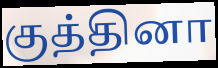
குத்தினா